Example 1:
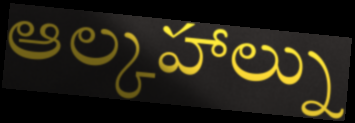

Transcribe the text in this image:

ఆల్కహాల్ను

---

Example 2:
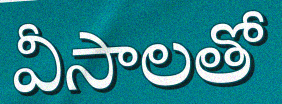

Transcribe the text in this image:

వీసాలతో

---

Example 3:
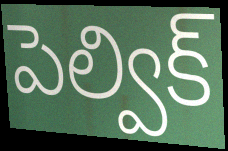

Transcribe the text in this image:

పెల్విక్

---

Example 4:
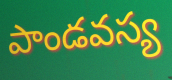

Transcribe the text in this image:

పాండవస్య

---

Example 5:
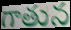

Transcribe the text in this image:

గాతున